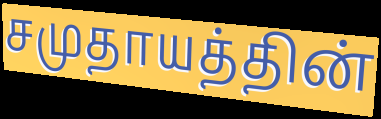
சமுதாயத்தின்